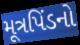
મૂત્રપિંડનો